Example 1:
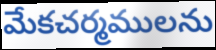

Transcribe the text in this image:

మేకచర్మములను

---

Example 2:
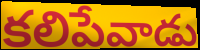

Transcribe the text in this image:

కలిపేవాడు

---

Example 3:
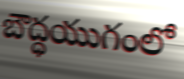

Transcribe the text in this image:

బౌద్ధయుగంలో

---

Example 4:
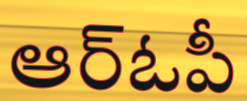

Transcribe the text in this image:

ఆర్ఓపీ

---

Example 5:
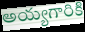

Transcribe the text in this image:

అయ్యగారికి